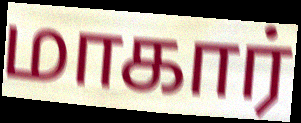
மாகார்